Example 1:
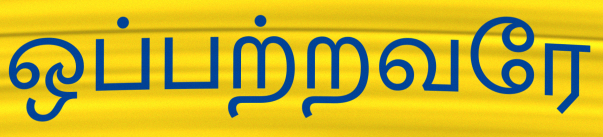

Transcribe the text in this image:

ஒப்பற்றவரே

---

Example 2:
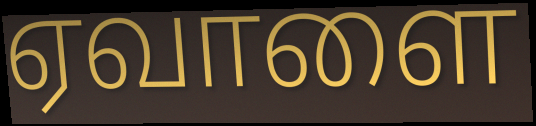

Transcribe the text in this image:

ஏவாளை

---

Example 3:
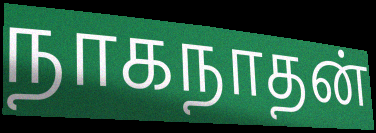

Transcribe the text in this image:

நாகநாதன்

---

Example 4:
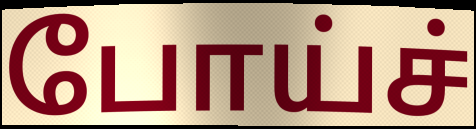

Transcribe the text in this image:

போய்ச்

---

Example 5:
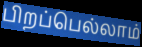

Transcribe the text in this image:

பிறப்பெல்லாம்